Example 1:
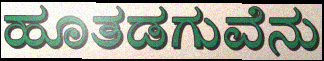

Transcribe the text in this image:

ಹೂತಡಗುವೆನು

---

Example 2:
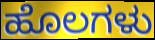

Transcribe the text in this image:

ಹೊಲಗಳು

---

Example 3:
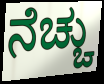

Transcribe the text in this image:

ನೆಚ್ಚು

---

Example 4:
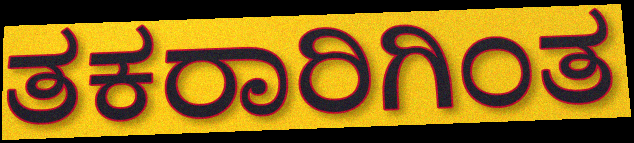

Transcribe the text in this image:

ತಕರಾರಿಗಿಂತ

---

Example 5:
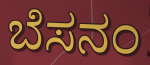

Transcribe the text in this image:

ಬೆಸನಂ